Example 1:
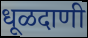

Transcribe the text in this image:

धूळदाणी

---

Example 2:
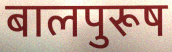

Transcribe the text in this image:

बालपुरूष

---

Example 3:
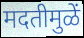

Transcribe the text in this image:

मदतीमुळें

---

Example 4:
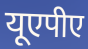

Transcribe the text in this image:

यूएपीए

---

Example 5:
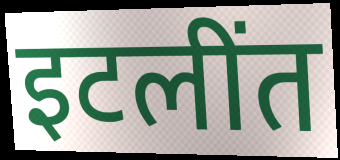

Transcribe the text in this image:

इटलींत